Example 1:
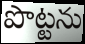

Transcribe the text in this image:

పొట్టను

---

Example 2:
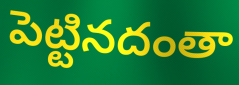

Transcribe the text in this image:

పెట్టినదంతా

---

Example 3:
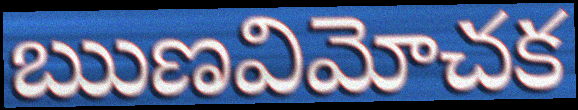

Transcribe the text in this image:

ఋణవిమోచక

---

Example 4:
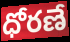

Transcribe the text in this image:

ధోరణే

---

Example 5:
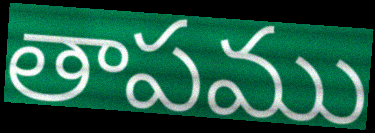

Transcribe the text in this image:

తాపము